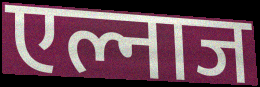
एल्नाज